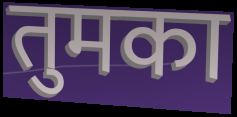
तुमका